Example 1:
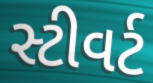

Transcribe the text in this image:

સ્ટીવર્ટ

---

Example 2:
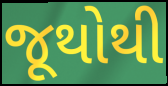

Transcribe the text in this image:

જૂથોથી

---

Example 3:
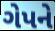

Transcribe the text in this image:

ગેપને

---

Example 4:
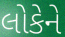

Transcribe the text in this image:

લોકેને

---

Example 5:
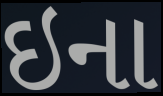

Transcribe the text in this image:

ઇના